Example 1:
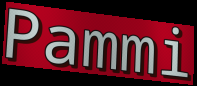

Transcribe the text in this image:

Pammi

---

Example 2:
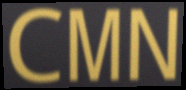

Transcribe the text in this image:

CMN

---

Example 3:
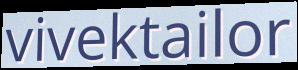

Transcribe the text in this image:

vivektailor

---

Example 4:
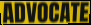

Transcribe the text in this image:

ADVOCATE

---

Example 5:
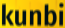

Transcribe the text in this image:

kunbi